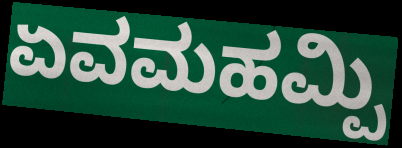
ಏವಮಹಮ್ಪಿ